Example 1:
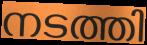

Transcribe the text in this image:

നടത്തി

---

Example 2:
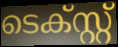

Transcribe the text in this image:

ടെക്സ്റ്റ്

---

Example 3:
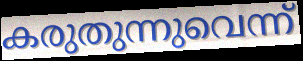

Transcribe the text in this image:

കരുതുന്നുവെന്ന്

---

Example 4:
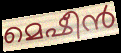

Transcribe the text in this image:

മെഷീൻ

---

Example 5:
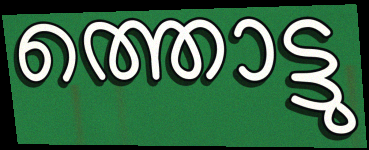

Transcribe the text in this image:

ത്തൊട്ടു